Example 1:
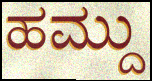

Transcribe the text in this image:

ಹಮ್ದು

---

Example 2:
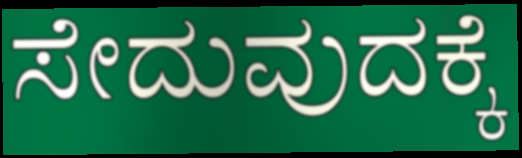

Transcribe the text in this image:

ಸೇದುವುದಕ್ಕೆ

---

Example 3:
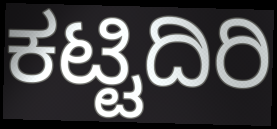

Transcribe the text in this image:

ಕಟ್ಟಿದಿರಿ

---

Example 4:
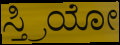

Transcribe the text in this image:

ಸ್ತ್ರಿಯೋ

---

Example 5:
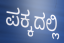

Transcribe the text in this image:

ಪಕ್ಕದಲ್ಲಿ